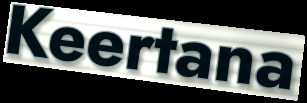
Keertana